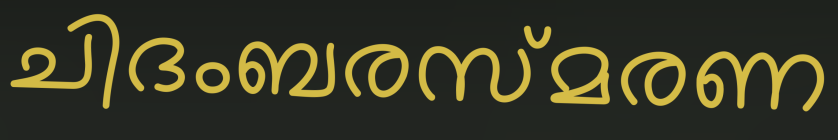
ചിദംബരസ്മരണ